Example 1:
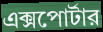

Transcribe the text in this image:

এক্সপোর্টার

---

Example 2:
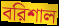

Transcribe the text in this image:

বরিশাল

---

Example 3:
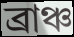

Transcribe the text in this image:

ব্রাঞ্চ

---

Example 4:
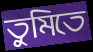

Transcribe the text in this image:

তুমিতে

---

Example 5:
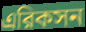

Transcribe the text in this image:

এরিকসন